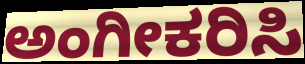
ಅಂಗೀಕರಿಸಿ